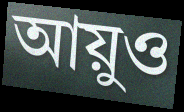
আয়ুও